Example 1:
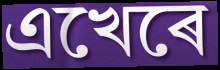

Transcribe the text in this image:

এখেৰে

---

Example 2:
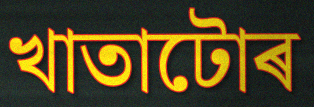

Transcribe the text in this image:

খাতাটোৰ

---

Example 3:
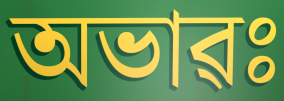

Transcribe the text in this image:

অভাৱঃ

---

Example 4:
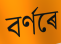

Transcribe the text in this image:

বৰ্ণৰে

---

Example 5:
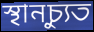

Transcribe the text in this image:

স্থানচ্যুত